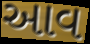
આવ